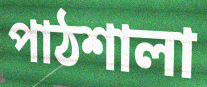
পাঠশালা